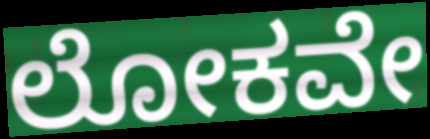
ಲೋಕವೇ